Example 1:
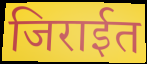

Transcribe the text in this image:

जिराईत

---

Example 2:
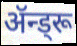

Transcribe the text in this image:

ॲन्ड्रू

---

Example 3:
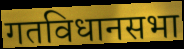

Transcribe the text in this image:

गतविधानसभा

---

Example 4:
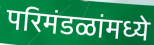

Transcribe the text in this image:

परिमंडळांमध्ये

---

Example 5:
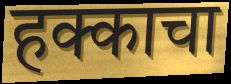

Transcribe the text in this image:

हक्काचा